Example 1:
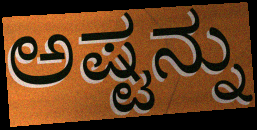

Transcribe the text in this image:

ಅಷ್ಟನ್ನು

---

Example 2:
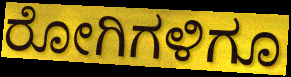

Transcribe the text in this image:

ರೋಗಿಗಳಿಗೂ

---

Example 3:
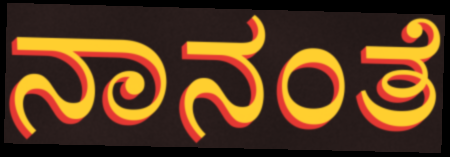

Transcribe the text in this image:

ನಾನಂತೆ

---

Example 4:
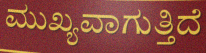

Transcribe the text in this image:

ಮುಖ್ಯವಾಗುತ್ತಿದೆ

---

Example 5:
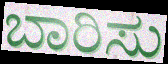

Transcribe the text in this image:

ಬಾರಿಸು